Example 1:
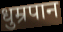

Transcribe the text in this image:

धुम्रपान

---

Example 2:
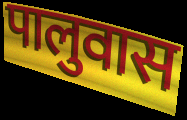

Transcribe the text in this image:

पालुवास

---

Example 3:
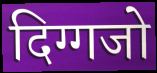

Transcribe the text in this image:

दिग्गजो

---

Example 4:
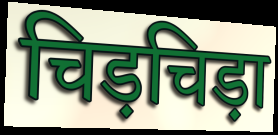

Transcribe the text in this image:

चिड़चिड़ा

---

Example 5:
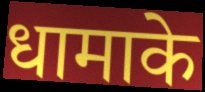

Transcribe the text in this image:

धामाके